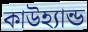
কাউহ্যান্ড